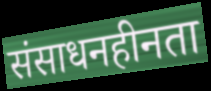
संसाधनहीनता